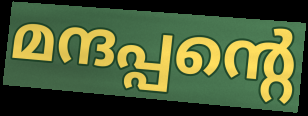
മന്ദപ്പന്റെ